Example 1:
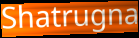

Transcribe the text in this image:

Shatrugna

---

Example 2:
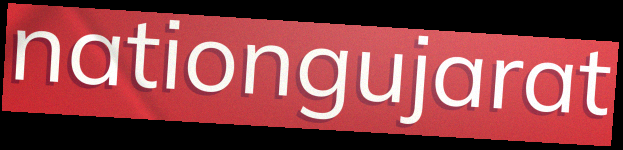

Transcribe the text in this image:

nationgujarat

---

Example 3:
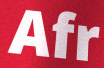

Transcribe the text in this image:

Afr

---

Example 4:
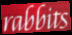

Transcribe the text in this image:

rabbits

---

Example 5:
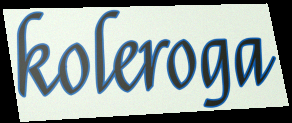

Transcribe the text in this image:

koleroga